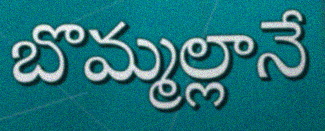
బొమ్మల్లానే